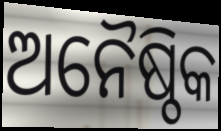
ଅନୈଷ୍ଠିକ